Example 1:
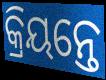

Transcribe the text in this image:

କ୍ରିୟନ୍ତେ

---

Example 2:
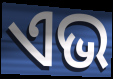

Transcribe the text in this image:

ଏଭ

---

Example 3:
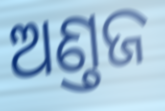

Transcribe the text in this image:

ଅଣ୍ତଜ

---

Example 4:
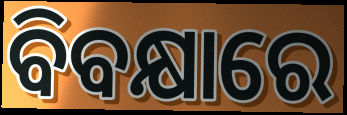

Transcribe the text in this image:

ବିବକ୍ଷାରେ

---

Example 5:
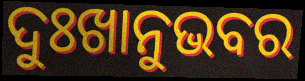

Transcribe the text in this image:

ଦୁଃଖାନୁଭବର